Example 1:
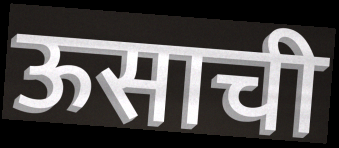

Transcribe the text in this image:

ऊसाची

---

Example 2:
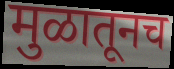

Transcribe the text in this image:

मुळातूनच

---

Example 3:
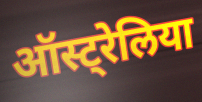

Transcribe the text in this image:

ऑस्ट्रेलिया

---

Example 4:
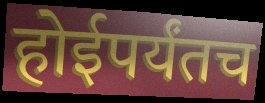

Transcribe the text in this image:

होईपर्यंतच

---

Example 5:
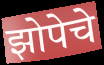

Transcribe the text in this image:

झोपेचे